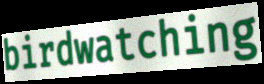
birdwatching